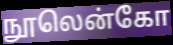
நூலென்கோ